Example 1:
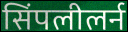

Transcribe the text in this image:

सिंपलीलर्न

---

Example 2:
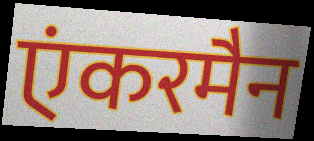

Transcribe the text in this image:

एंकरमैन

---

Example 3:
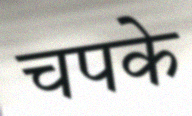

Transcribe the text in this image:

चपके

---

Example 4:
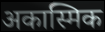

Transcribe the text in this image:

अकास्मिक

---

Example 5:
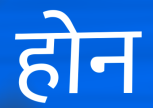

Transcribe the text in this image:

होन